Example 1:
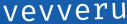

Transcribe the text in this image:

vevveru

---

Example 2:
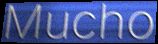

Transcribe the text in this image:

Mucho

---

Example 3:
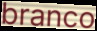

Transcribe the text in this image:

branco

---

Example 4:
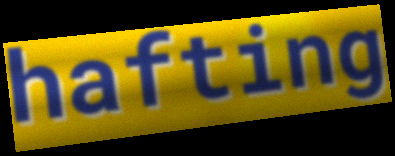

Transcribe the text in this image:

hafting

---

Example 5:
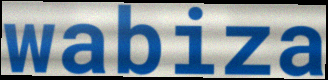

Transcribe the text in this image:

wabiza